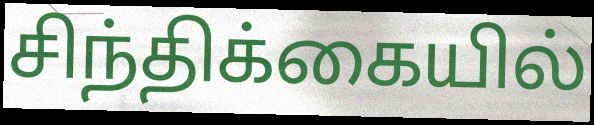
சிந்திக்கையில்